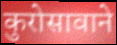
कुरोसावाने